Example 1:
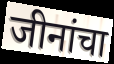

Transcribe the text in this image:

जीनांचा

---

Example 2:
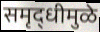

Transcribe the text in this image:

समृद्धीमुळे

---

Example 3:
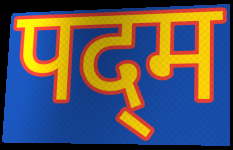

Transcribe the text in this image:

पद्‌म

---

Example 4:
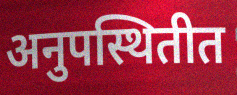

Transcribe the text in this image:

अनुपस्थितीत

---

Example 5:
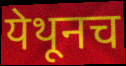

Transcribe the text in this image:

येथूनच